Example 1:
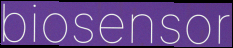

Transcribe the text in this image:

biosensor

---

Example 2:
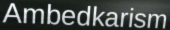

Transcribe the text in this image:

Ambedkarism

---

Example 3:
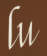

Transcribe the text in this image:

lu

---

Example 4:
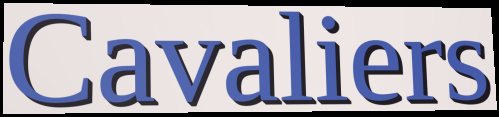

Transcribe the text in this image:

Cavaliers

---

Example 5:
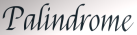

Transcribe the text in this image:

Palindrome